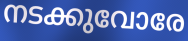
നടക്കുവോരേ